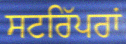
ਸਟਰਿੱਪਰਾਂ